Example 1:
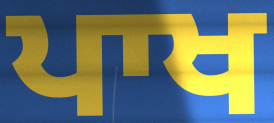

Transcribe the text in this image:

ਪਾਖ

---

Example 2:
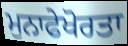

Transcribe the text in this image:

ਮੁਨਾਫੇਖੋਰਤਾ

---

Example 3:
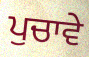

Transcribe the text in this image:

ਪੁਚਾਵੇ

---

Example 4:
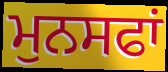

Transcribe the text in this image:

ਮੁਨਸਫਾਂ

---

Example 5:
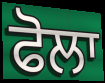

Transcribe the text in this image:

ਫੋਲਾ